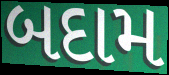
બદામ